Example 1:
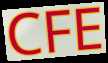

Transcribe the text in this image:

CFE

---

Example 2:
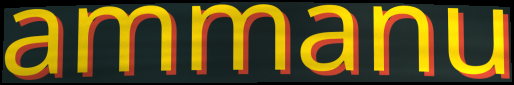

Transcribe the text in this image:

ammanu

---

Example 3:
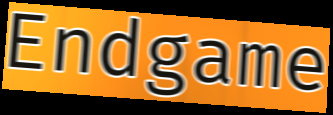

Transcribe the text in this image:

Endgame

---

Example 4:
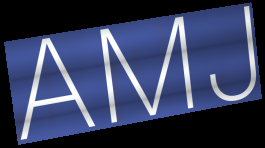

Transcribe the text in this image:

AMJ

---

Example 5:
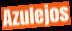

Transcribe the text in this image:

Azulejos